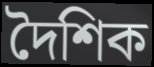
দৈশিক